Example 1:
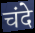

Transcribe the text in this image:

चंदे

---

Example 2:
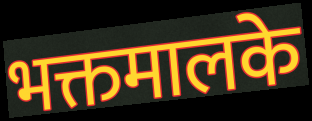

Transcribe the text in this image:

भक्तमालके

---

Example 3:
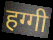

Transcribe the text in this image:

हग्गी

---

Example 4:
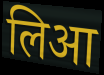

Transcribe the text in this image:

लिआ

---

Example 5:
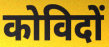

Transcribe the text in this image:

कोविदों